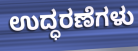
ಉದ್ಧರಣೆಗಳು